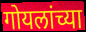
गोयलांच्या